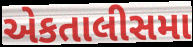
એકતાલીસમા